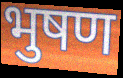
भुषण